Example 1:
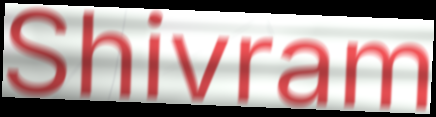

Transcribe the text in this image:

Shivram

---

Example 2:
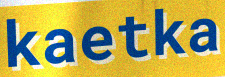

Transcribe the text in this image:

kaetka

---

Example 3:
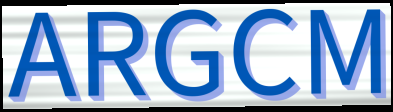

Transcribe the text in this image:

ARGCM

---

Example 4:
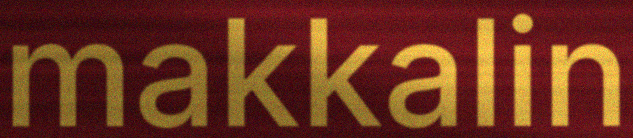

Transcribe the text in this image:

makkalin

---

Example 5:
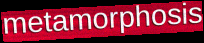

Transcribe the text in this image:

metamorphosis